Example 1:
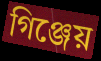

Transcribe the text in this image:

গিঞ্জেয়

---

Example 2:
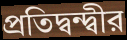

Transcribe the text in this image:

প্রতিদ্বন্দ্বীর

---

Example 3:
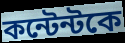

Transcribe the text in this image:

কন্টেন্টকে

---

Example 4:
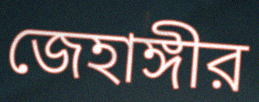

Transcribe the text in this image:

জেহাঙ্গীর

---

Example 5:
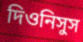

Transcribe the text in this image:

দিওনিসুস